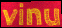
vinu